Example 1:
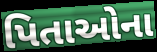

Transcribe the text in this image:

પિતાઓના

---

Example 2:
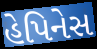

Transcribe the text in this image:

હેપિનેસ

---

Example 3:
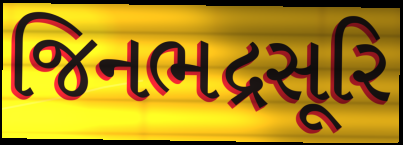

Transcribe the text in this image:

જિનભદ્રસૂરિ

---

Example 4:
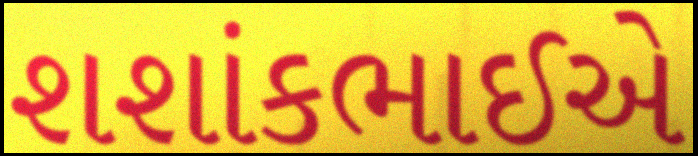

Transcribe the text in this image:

શશાંકભાઈએ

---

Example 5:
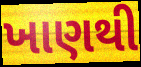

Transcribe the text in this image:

ખાણથી